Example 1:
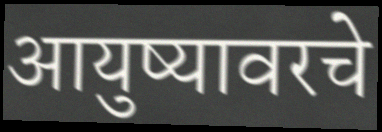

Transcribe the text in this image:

आयुष्यावरचे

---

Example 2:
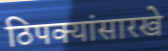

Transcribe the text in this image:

ठिपक्यांसारखे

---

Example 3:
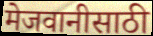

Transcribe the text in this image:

मेजवानीसाठी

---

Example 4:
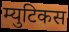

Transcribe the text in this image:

म्युटिकस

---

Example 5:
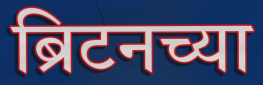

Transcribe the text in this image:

ब्रिटनच्या